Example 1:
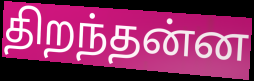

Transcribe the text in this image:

திறந்தன்ன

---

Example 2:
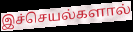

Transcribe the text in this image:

இச்செயல்களால்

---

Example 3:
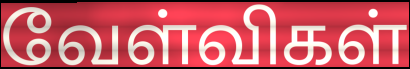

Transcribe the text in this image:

வேள்விகள்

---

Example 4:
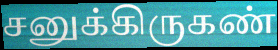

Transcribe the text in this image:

சனுக்கிருகண்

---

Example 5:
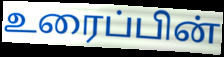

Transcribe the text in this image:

உரைப்பின்